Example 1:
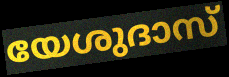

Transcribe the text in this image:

യേശുദാസ്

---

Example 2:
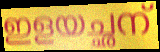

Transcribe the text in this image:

ഇളയച്ഛന്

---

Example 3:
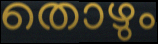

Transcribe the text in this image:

തൊഴും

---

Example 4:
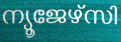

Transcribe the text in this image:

ന്യൂജേഴ്സി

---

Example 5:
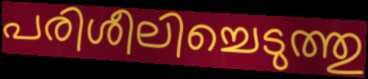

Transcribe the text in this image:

പരിശീലിച്ചെടുത്തു